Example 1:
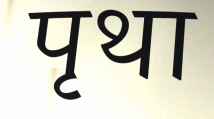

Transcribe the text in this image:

पृथा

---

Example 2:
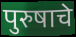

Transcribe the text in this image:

पुरुषाचे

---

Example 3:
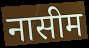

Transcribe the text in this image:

नासीम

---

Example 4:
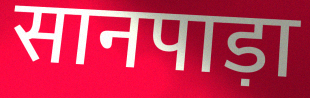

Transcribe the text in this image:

सानपाड़ा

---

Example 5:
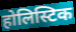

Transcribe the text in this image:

होलिस्टिक